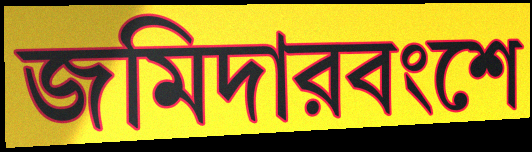
জমিদারবংশে